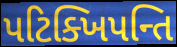
પટિક્ખિપન્તિ